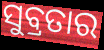
ସୁବ୍ରତାର